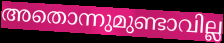
അതൊന്നുമുണ്ടാവില്ല